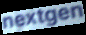
nextgen